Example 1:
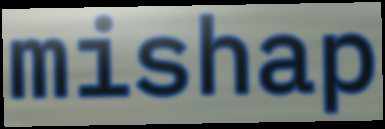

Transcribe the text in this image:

mishap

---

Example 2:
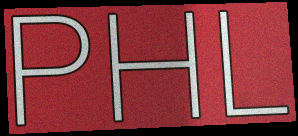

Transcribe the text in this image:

PHL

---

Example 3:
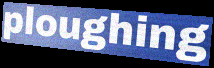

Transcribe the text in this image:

ploughing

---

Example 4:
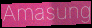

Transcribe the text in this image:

Amasung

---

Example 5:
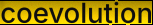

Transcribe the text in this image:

coevolution